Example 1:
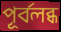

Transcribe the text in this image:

পূৰ্বলব্ধ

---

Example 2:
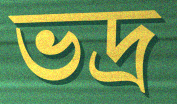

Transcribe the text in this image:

ভদ্ৰ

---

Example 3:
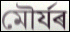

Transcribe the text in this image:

মৌৰ্যৰ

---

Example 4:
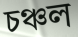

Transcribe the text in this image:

চঞ্চল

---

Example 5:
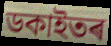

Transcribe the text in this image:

ডকাইতৰ